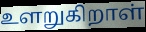
உளறுகிறாள்